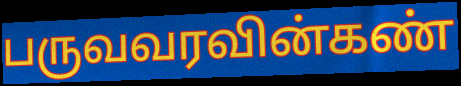
பருவவரவின்கண்